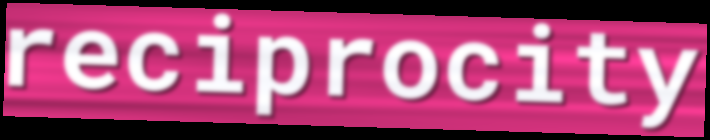
reciprocity